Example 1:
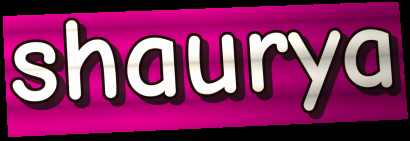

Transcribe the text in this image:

shaurya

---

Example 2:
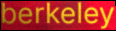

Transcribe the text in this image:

berkeley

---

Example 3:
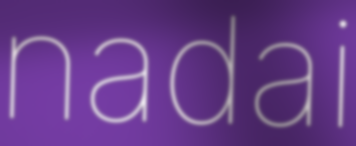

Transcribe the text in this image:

nadai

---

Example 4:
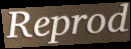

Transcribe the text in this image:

Reprod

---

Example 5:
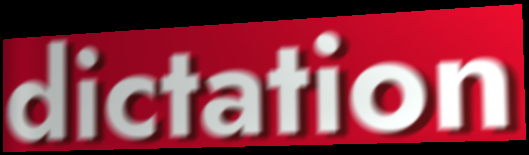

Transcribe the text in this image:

dictation